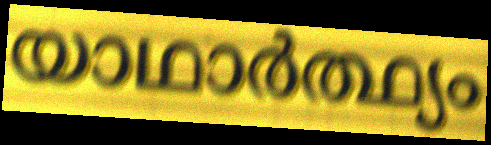
യാഥാർത്ഥ്യം